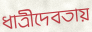
ধাত্রীদেবতায়